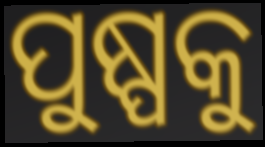
ପୁଷ୍ପକୁ